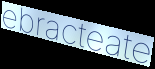
ebracteate